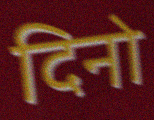
दिनो